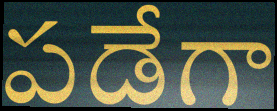
పడేగా